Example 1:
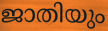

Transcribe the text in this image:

ജാതിയും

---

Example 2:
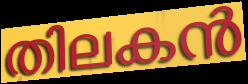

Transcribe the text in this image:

തിലകൻ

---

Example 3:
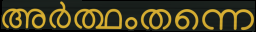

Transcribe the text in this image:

അർത്ഥംതന്നെ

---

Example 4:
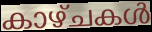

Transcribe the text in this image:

കാഴ്‌ചകൾ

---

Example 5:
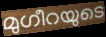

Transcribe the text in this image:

മുഗീറയുടെ